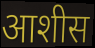
आशीस